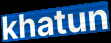
khatun